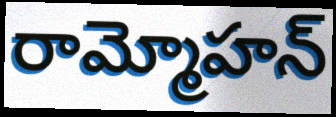
రామ్మోహన్